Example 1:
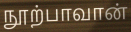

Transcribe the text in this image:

நூற்பாவான்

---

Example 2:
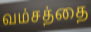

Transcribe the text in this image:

வம்சத்தை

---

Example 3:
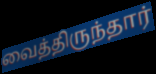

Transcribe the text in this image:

வைத்திருந்தார்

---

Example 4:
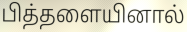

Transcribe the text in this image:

பித்தளையினால்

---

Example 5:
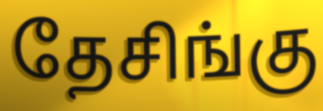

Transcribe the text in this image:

தேசிங்கு